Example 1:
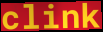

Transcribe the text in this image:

clink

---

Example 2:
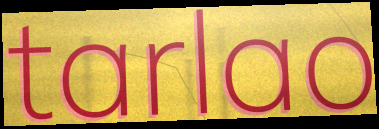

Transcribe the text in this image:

tarlao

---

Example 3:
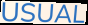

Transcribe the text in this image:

USUAL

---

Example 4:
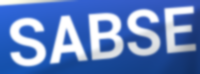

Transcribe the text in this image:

SABSE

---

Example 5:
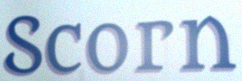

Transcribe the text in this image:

Scorn